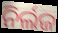
ନିର୍ଲଜ